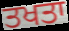
ਤਖਤਾ